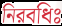
নিরবধিঃ